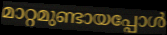
മാറ്റമുണ്ടായപ്പോൾ